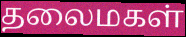
தலைமகள்